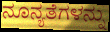
ನೂನ್ಯತೆಗಳನ್ನು